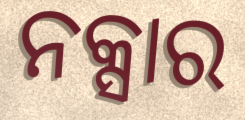
ନକ୍ସାର